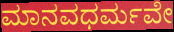
ಮಾನವಧರ್ಮವೇ